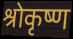
श्रोकृष्ण